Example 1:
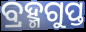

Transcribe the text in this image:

ବ୍ରହ୍ମଗୁପ୍ତ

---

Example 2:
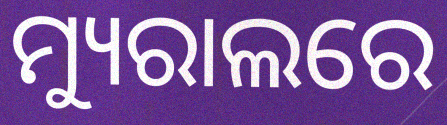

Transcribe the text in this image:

ମ୍ୟୁରାଲରେ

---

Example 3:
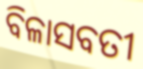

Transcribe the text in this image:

ବିଳାସବତୀ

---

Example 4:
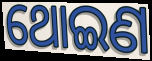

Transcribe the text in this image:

ଥୋଇଣ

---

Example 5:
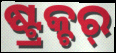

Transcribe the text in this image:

ଷ୍ଟ୍ରକ୍ଚର୍